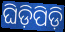
ଘିଡ଼ିପିଡ଼ି